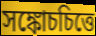
সঙ্কোচচিত্তে